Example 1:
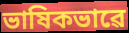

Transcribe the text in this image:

ভাষিকভাৱে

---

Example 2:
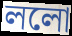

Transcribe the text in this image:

ললো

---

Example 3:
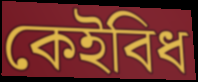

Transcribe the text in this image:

কেইবিধ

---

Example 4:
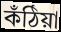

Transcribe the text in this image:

কঁঠিয়া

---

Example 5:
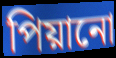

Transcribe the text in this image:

পিয়ানো